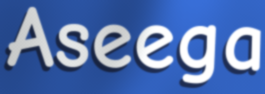
Aseega